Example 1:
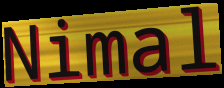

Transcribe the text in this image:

Nimal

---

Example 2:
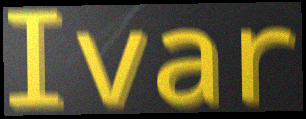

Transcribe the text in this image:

Ivar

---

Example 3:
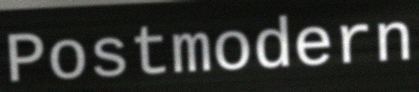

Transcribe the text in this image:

Postmodern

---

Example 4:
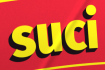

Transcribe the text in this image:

suci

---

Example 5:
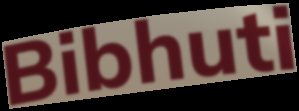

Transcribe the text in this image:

Bibhuti